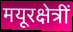
मयूरक्षेत्रीं